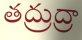
తద్రుద్రా